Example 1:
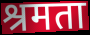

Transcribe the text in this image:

श्रमता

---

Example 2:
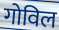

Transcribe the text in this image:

गोविल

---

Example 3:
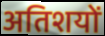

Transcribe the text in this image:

अतिशयों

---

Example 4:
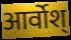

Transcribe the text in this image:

आर्वोश्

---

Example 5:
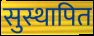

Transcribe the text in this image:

सुस्थापित